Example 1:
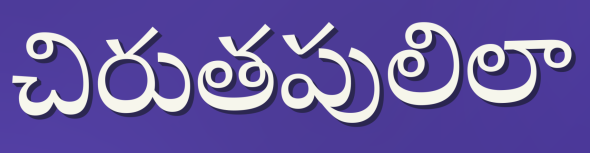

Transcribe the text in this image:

చిరుతపులిలా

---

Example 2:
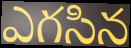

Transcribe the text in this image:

ఎగసిన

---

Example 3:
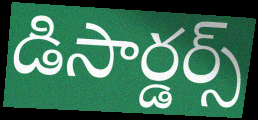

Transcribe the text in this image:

డిసార్డర్స్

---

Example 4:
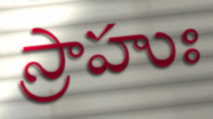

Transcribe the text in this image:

స్రాహుః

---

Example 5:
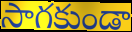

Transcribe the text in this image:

సాగకుండా